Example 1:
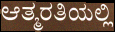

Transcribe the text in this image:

ಆತ್ಮರತಿಯಲ್ಲಿ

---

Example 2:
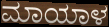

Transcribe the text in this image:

ಮಾಯಾಳ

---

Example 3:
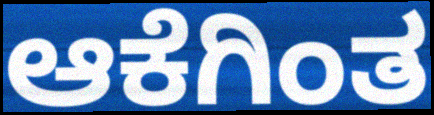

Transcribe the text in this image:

ಆಕೆಗಿಂತ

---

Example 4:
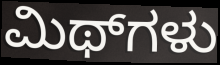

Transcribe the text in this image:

ಮಿಥ್‌ಗಳು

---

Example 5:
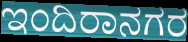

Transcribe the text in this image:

ಇಂದಿರಾನಗರ